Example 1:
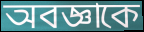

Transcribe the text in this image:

অবজ্ঞাকে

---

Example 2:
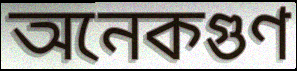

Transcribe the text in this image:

অনেকগুণ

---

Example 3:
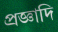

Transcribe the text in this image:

প্রজ্ঞাদি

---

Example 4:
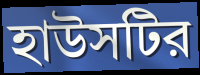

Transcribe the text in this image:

হাউসটির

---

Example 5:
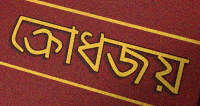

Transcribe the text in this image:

ক্রোধজয়